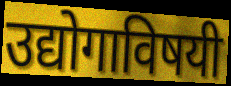
उद्योगाविषयी